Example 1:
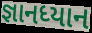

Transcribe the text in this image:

જ્ઞાનધ્યાન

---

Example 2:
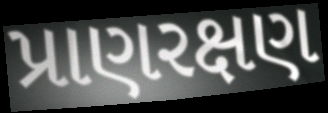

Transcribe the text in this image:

પ્રાણરક્ષણ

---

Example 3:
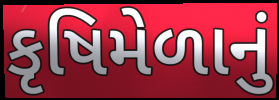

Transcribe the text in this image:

કૃષિમેળાનું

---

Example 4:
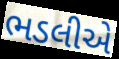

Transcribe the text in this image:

ભડલીએ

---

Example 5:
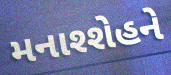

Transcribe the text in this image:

મનાશ્શેહને